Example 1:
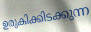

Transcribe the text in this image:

ഉരുകിക്കിടക്കുന്ന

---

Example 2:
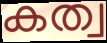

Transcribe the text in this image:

കത്വ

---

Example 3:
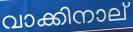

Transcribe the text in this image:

വാക്കിനാല്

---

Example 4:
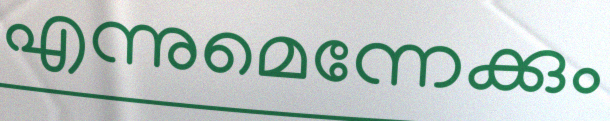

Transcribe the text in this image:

എന്നുമെന്നേക്കും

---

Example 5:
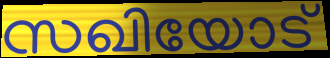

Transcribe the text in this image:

സഖിയോട്